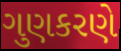
ગુણકરણે